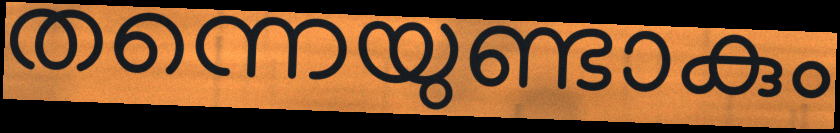
തന്നെയുണ്ടാകും